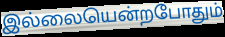
இல்லையென்றபோதும்